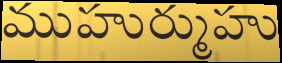
ముహుర్ముహు